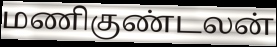
மணிகுண்டலன்